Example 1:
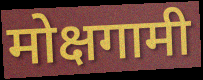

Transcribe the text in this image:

मोक्षगामी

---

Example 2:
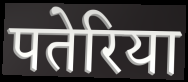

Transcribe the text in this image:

पतेरिया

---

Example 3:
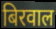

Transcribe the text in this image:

बिरवाल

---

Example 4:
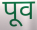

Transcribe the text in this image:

पूव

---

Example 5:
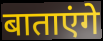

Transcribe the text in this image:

बाताएंगे